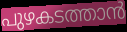
പുഴകടത്താൻ